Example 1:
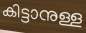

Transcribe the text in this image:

കിട്ടാനുള്ള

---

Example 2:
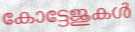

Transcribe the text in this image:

കോട്ടേജുകൾ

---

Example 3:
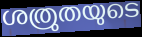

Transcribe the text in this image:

ശത്രുതയുടെ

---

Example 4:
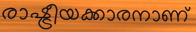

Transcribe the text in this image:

രാഷ്ട്രീയക്കാരനാണ്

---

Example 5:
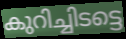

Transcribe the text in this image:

കുറിച്ചിടട്ടെ